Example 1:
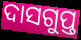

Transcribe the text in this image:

ଦାସଗୁପ୍ତ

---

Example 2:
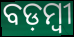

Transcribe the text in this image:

ବଡ଼ମ୍ବୀ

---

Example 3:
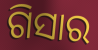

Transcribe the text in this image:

ଗିସାର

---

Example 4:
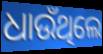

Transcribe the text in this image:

ଧାଉଁଥିଲେ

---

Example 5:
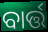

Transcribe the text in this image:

ବାର୍ତ୍ତ